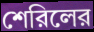
শেরিলের